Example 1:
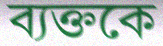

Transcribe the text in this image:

ব্যক্তকে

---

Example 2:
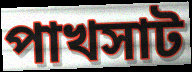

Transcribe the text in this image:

পাখসাট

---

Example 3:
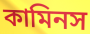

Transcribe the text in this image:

কামিনস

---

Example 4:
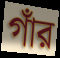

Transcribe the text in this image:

গাঁর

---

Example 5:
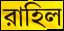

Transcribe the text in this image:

রাহিল